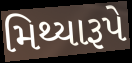
મિથ્યારૂપે